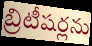
బ్రిటీషర్లను